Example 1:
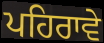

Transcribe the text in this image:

ਪਹਿਰਾਵੇ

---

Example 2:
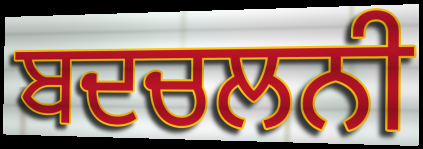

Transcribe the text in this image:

ਬਦਚਲਨੀ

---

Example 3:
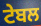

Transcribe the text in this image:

ਟੇਬਲ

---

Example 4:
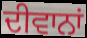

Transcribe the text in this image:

ਦੀਵਾਨਾਂ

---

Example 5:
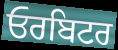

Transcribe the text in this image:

ਓਰਬਿਟਰ